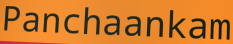
Panchaankam